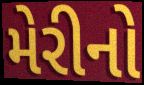
મેરીનો